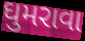
ઘુમરાવા